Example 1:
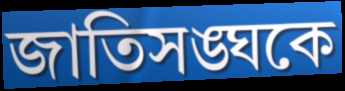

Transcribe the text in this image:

জাতিসঙ্ঘকে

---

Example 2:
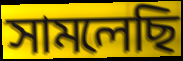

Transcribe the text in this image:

সামলেছি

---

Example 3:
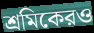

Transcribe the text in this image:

শ্রমিকেরও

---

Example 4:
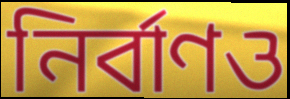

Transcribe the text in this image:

নির্বাণও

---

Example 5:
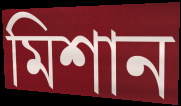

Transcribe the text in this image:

মিশান